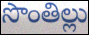
సొంతిల్లు